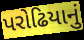
પરોઢિયાનું